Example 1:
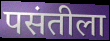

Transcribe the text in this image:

पसंतीला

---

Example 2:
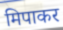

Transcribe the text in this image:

मिपाकर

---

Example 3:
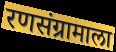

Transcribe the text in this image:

रणसंग्रामाला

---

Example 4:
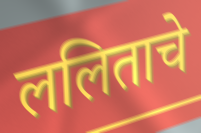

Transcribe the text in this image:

ललिताचे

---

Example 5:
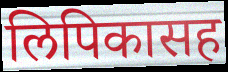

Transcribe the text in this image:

लिपिकासह